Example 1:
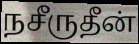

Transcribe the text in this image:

நசீருதீன்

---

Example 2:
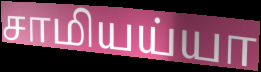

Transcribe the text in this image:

சாமியய்யா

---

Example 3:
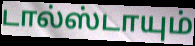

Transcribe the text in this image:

டால்ஸ்டாயும்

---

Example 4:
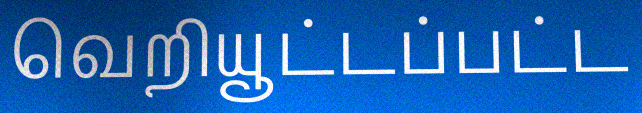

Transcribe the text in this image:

வெறியூட்டப்பட்ட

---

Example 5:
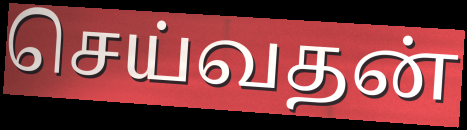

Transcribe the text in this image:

செய்வதன்